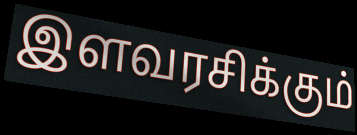
இளவரசிக்கும்